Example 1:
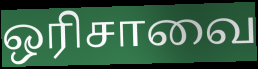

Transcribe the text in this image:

ஒரிசாவை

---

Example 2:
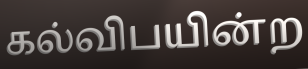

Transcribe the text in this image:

கல்விபயின்ற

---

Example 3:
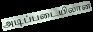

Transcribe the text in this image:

அடிப்படையிலான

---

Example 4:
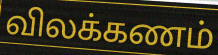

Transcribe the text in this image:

விலக்கணம்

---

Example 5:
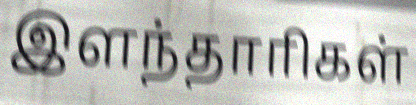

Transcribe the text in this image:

இளந்தாரிகள்